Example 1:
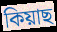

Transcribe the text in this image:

কিয়াছ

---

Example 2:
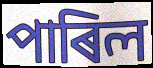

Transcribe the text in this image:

পাৰিল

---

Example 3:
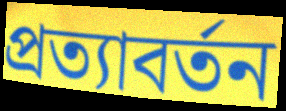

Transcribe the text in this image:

প্ৰত্যাবৰ্তন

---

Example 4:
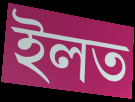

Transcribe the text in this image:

ইলত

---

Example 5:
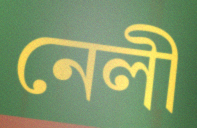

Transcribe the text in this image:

নেলী